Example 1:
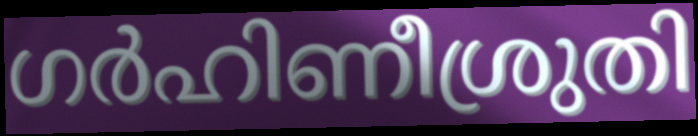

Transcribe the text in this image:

ഗർഹിണീശ്രുതി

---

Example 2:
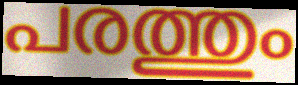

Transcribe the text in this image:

പരത്തും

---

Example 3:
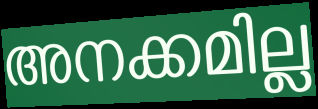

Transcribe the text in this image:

അനക്കമില്ല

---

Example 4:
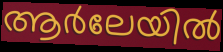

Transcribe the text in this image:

ആർലേയിൽ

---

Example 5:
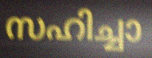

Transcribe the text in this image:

സഹിച്ചാ